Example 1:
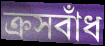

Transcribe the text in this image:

ক্রসবাঁধ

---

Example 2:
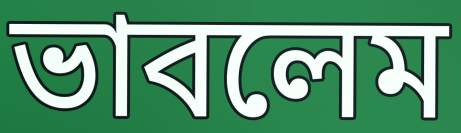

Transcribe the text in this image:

ভাবলেম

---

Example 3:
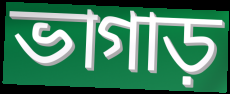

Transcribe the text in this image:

ভাগাড়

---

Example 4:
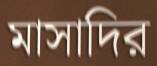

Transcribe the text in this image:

মাসাদির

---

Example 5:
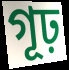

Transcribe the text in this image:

গূঢ়